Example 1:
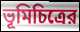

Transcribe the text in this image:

ভূমিচিত্রের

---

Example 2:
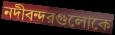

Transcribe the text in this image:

নদীবন্দরগুলোকে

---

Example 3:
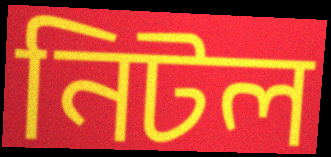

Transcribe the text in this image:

নিটল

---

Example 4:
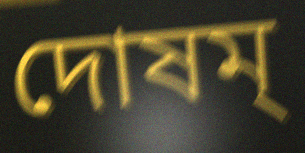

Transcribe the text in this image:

দোষম্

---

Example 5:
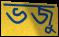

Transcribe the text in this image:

ভজু